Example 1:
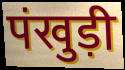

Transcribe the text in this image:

पंखुड़ी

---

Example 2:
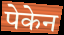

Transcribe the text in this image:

पेकेन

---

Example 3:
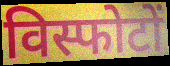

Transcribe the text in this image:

विस्फोटों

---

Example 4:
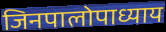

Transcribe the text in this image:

जिनपालोपाध्याय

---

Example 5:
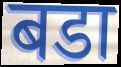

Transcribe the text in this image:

बडा